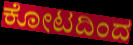
ಕೋಟದಿಂದ